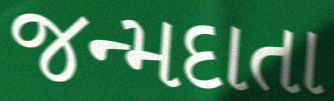
જન્મદાતા